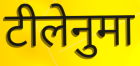
टीलेनुमा